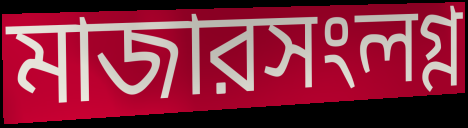
মাজারসংলগ্ন